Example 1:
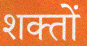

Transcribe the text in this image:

शक्तों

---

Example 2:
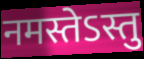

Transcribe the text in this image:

नमस्तेऽस्तु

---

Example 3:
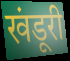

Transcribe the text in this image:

खंडूरी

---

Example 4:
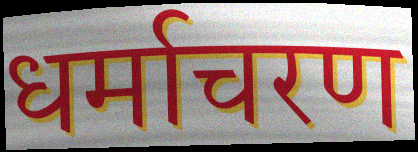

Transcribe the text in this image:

धर्माचरण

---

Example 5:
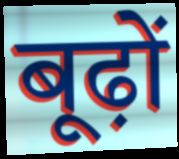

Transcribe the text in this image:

बूढ़ों